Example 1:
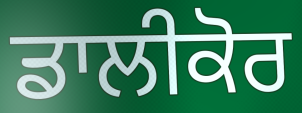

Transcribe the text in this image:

ਡਾਲੀਕੋਰ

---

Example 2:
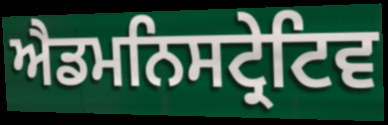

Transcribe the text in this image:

ਐਡਮਨਿਸਟ੍ਰੇਟਿਵ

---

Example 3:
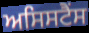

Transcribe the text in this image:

ਅਸਿਸਟੈਂਸ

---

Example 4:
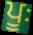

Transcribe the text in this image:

ਪੂਃ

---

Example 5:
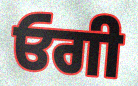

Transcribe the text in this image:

ਓਗੀ